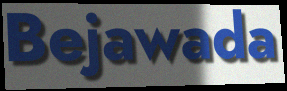
Bejawada